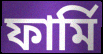
ফার্মি